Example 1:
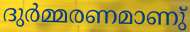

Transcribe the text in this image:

ദുർമ്മരണമാണു്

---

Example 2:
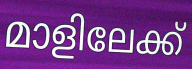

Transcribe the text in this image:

മാളിലേക്ക്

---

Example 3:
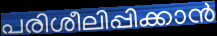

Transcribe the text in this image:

പരിശീലിപ്പിക്കാൻ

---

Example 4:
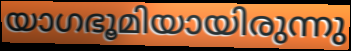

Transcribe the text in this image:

യാഗഭൂമിയായിരുന്നു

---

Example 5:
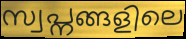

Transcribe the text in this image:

സ്വപ്നങ്ങളിലെ